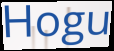
Hogu